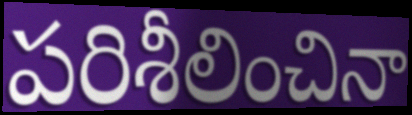
పరిశీలించినా